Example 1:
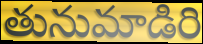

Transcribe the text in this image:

తునుమాడిరి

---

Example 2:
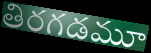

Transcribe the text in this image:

తిరగడమూ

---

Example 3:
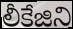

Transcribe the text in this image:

లీకేజిని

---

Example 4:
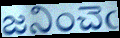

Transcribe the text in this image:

జనించెఁ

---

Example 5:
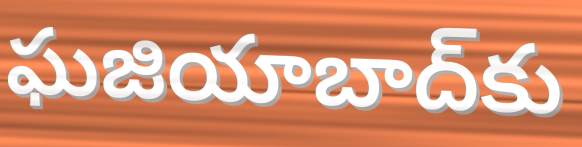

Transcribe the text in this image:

ఘజియాబాద్‌కు